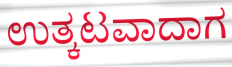
ಉತ್ಕಟವಾದಾಗ